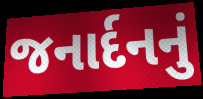
જનાર્દનનું